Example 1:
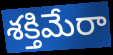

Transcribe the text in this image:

శక్తిమేరా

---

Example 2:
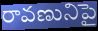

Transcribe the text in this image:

రావణునిపై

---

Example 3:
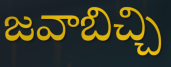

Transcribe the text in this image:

జవాబిచ్చి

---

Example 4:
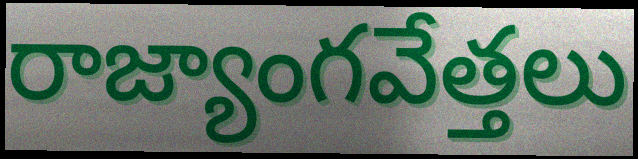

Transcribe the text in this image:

రాజ్యాంగవేత్తలు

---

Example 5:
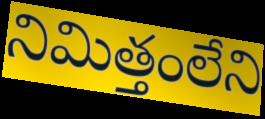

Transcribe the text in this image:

నిమిత్తంలేని